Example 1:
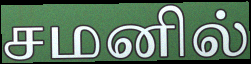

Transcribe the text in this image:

சமனில்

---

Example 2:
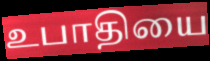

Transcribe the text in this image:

உபாதியை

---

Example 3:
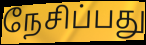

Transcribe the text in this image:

நேசிப்பது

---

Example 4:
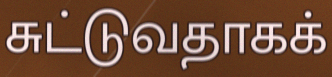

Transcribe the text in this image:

சுட்டுவதாகக்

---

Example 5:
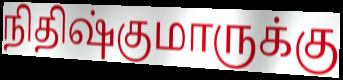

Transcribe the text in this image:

நிதிஷ்குமாருக்கு